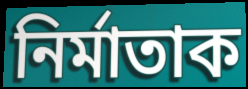
নিৰ্মাতাক